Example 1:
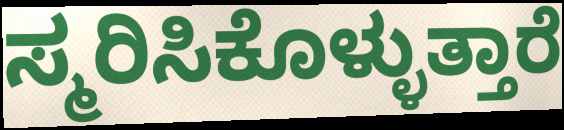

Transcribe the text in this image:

ಸ್ಮರಿಸಿಕೊಳ್ಳುತ್ತಾರೆ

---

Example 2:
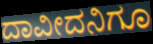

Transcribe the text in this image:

ದಾವೀದನಿಗೂ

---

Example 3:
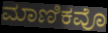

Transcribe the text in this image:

ಮಾಣಿಕವೊ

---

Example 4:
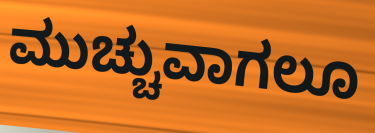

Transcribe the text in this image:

ಮುಚ್ಚುವಾಗಲೂ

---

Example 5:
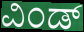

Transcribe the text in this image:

ವಿಂಡ್